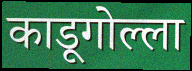
काडूगोल्ला